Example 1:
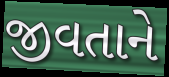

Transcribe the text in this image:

જીવતાને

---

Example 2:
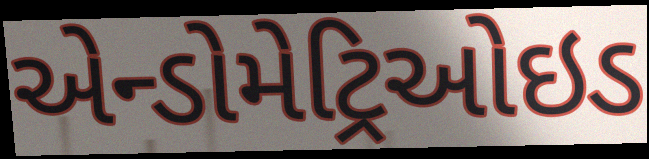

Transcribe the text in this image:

એન્ડોમેટ્રિઓઇડ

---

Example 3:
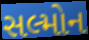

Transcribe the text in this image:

સલ્મોન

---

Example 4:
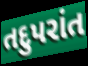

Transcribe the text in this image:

તદુપરાંત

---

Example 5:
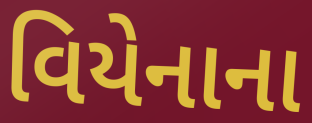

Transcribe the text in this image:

વિયેનાના